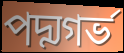
পদ্মগর্ভ